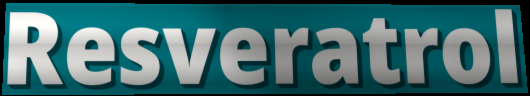
Resveratrol